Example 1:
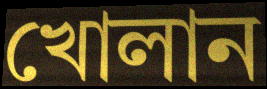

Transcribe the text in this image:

খোলান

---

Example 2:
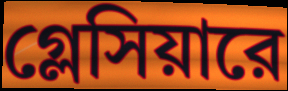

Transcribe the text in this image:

গ্লেসিয়ারে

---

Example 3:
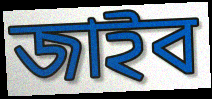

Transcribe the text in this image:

জাইব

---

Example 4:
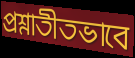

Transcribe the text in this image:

প্রশ্নাতীতভাবে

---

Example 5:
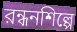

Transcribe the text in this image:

রন্ধনশিল্পে